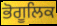
ਭੋਗੂਲਿਕ